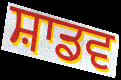
ਸ਼ਾਡਵ